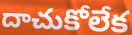
దాచుకోలేక